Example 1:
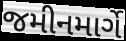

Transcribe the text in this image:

જમીનમાર્ગે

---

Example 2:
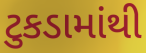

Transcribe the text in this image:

ટુકડામાંથી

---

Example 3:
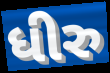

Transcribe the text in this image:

ધીરુ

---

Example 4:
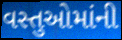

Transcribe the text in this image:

વસ્તુઓમાંની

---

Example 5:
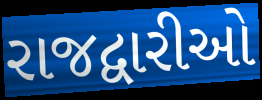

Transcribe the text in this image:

રાજદ્વારીઓ